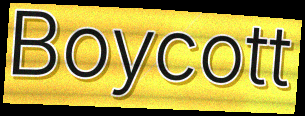
Boycott